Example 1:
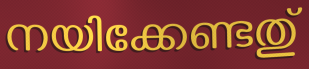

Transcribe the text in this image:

നയിക്കേണ്ടതു്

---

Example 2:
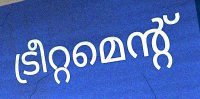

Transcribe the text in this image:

ട്രീറ്റമെന്റ്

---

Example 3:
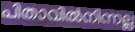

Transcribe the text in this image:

പിതാവിൽനിന്നല്ല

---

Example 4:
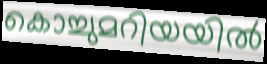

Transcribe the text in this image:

കൊച്ചുമറിയയിൽ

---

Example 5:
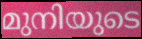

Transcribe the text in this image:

മുനിയുടെ